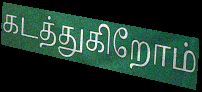
கடத்துகிறோம்